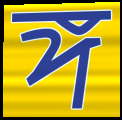
ঙ্গ